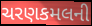
ચરણકમલની